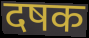
दषक